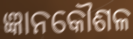
ଜ୍ଞାନକୌଶଳ